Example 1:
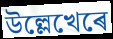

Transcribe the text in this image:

উল্লেখেৰে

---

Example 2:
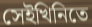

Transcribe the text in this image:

সেইখিনিতে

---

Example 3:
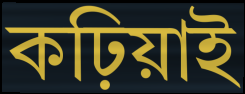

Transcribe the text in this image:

কঢ়িয়াই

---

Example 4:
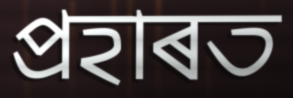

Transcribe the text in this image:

প্ৰহাৰত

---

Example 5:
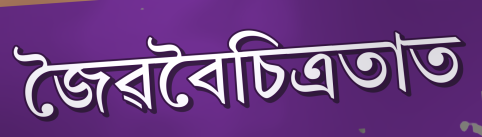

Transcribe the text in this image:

জৈৱবৈচিত্ৰতাত